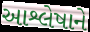
આશ્લેષાને